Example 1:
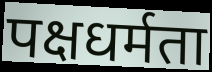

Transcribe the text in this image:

पक्षधर्मता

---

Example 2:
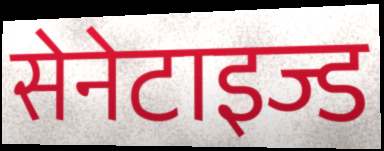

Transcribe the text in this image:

सेनेटाइज्ड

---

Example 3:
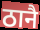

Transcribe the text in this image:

ठानै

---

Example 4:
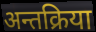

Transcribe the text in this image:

अन्तक्रिया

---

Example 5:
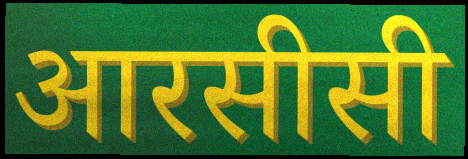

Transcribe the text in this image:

आरसीसी